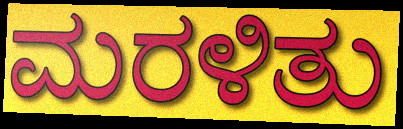
ಮರಳಿತು